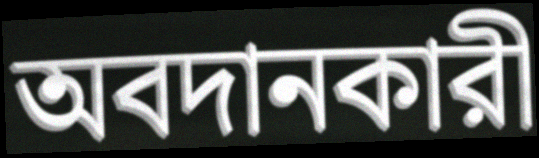
অবদানকারী